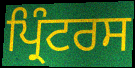
ਪ੍ਰਿੰਟਰਸ